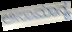
ಅಸಾಮಾನ್ಯ